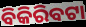
ବିକିରିବଟା